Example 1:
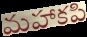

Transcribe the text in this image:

మహాకపి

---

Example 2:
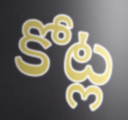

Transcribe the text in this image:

కోట్ల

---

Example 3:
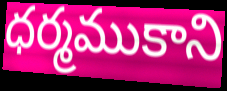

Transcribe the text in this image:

ధర్మముకాని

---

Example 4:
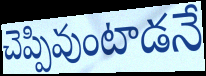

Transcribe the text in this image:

చెప్పివుంటాడనే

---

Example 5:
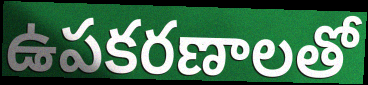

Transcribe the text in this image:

ఉపకరణాలతో